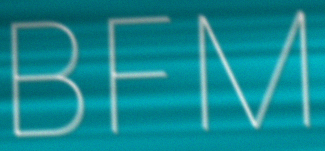
BFM